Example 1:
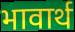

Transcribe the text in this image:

भावार्थ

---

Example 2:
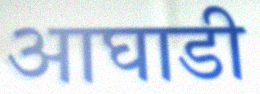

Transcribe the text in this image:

आघाडी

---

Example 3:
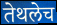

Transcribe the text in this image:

तेथलेच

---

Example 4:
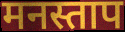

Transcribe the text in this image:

मनस्ताप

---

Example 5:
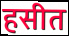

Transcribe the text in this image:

हसीत